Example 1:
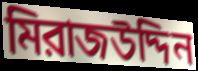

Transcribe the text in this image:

মিরাজউদ্দিন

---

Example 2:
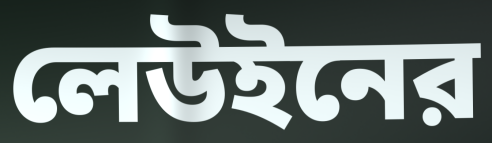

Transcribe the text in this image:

লেউইনের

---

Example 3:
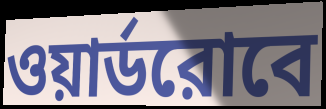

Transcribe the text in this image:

ওয়ার্ডরোবে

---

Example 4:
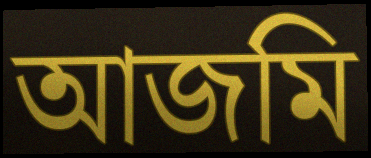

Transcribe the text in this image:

আজমি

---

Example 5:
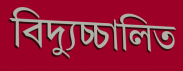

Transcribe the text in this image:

বিদ্যুচ্চালিত